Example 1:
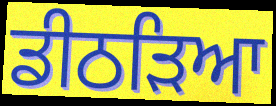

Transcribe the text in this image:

ਡੀਠੜਿਆ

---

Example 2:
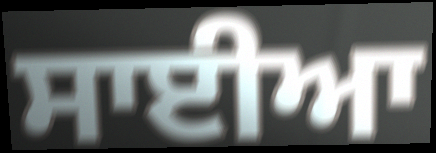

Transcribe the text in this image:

ਸਾਈਆ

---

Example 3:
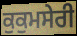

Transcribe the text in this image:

ਕੁਕੁਮਸੇਰੀ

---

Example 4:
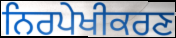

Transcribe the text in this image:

ਨਿਰਪੇਖੀਕਰਣ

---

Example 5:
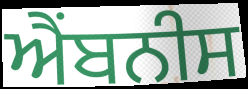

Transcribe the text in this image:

ਐਂਬਨੀਸ